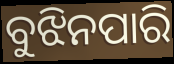
ବୁଝିନପାରି